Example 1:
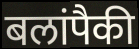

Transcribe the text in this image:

बलांपैकी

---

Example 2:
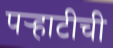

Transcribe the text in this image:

पऱ्हाटीची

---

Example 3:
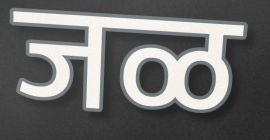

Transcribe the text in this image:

जळ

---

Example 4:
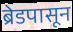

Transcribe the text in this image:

ब्रेडपासून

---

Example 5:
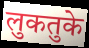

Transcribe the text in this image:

लुकतुके